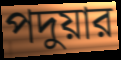
পদুয়ার